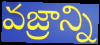
వజ్రాన్ని